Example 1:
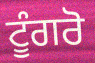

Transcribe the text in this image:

ਟੂੰਗਰੋ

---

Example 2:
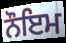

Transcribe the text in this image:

ਨੌਇਮ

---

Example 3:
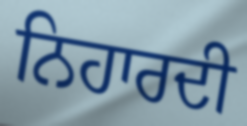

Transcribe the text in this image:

ਨਿਹਾਰਦੀ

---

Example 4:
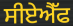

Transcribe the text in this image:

ਸੀਏਐੱਫ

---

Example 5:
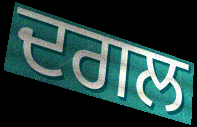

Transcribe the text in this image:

ਦਗਲ